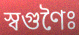
স্বগুণৈঃ